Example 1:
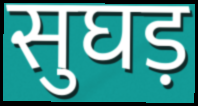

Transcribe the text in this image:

सुघड़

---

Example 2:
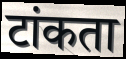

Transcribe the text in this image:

टांकता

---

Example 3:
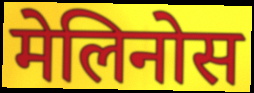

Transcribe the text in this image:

मेलिनोस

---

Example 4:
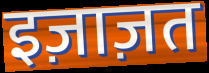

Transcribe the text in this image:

इज़ाज़त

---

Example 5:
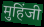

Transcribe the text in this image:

मुहिंजी